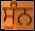
ਸੁੰਨ